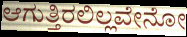
ಆಗುತ್ತಿರಲಿಲ್ಲವೇನೋ